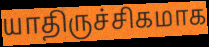
யாதிருச்சிகமாக